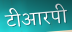
टीआरपी